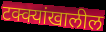
टक्क्यांखालील